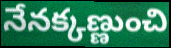
నేనక్కణ్ణుంచి